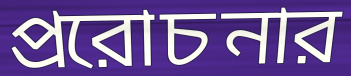
প্ররোচনার